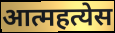
आत्महत्येस